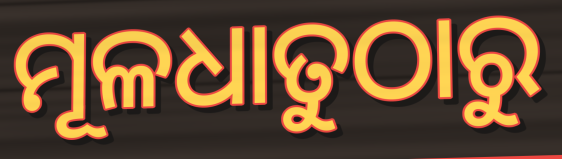
ମୂଳଧାତୁଠାରୁ